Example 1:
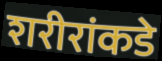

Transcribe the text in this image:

शरीरांकडे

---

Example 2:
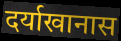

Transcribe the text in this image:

दर्याखानास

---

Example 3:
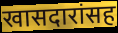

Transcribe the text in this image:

खासदारांसह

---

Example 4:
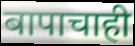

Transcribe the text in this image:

बापाचाही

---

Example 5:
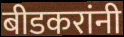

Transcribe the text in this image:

बीडकरांनी